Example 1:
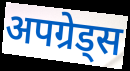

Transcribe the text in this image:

अपग्रेड्स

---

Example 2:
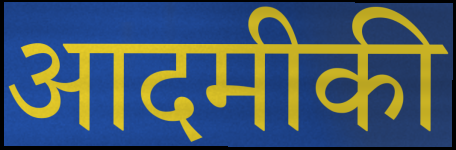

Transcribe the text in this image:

आदमीकी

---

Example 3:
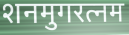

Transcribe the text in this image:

शनमुगरत्नम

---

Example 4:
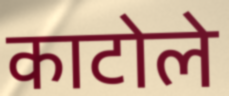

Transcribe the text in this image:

काटोले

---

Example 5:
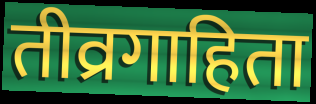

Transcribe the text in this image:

तीव्रगाहिता